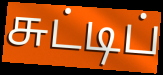
சுட்டிப்